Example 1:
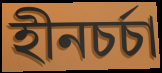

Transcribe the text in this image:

হীনচর্চা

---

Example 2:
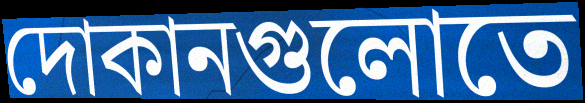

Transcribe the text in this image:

দোকানগুলোতে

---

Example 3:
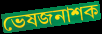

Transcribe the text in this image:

ভেষজনাশক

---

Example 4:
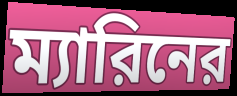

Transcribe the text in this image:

ম্যারিনের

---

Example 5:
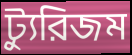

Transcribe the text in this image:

ট্যুরিজম